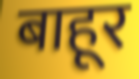
बाहूर